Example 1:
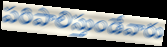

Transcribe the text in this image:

పరిపాలిస్తుండేవారు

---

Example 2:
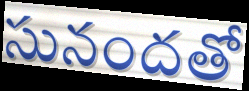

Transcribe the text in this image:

సునందతో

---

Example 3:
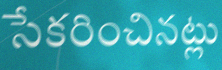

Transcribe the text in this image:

సేకరించినట్లు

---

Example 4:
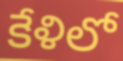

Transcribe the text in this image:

కేళిలో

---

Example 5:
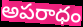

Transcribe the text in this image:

అపరాధం